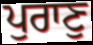
ਪੁਰਾਣੁ